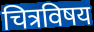
चित्रविषय